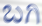
ಬಗಿ